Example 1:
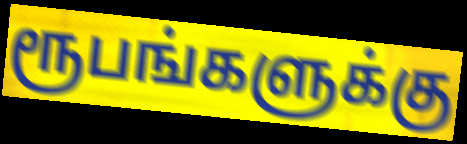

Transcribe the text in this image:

ரூபங்களுக்கு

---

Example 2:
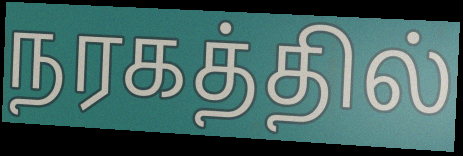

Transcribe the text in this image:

நரகத்தில்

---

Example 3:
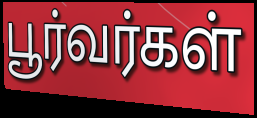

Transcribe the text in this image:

பூர்வர்கள்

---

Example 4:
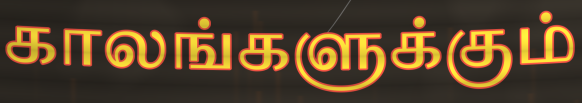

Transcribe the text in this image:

காலங்களுக்கும்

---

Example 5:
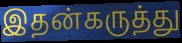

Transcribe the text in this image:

இதன்கருத்து